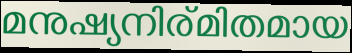
മനുഷ്യനിര്മിതമായ